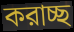
করাচ্ছ